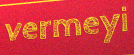
vermeyi